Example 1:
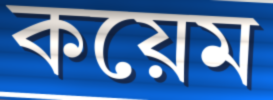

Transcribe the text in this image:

কয়েম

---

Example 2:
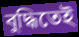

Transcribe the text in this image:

বুদ্ধিতেই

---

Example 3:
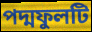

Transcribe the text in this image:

পদ্মফুলটি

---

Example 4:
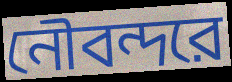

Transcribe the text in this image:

নৌবন্দরে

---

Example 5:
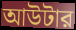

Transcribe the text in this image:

আউটার